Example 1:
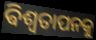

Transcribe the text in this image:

ଵିଶ୍ଵତାପନକୁ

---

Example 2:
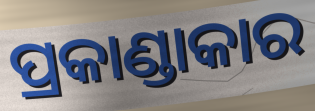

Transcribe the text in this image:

ପ୍ରକାଣ୍ଡାକାର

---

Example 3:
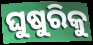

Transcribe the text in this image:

ଘୁଷୁରିକୁ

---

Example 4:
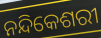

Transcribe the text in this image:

ନନ୍ଦିକେଶରୀ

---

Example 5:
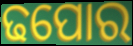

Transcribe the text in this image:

ଢପୋର